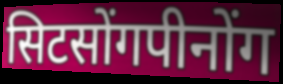
सिटसोंगपीनोंग